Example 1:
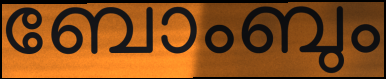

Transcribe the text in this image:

ബോംബും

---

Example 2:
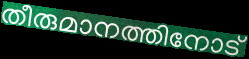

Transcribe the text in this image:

തീരുമാനത്തിനോട്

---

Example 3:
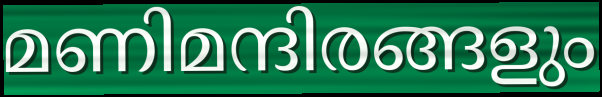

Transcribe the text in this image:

മണിമന്ദിരങ്ങളും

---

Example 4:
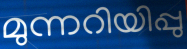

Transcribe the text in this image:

മുന്നറിയിപ്പു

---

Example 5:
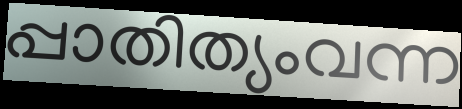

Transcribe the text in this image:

പ്പാതിത്യംവന്ന